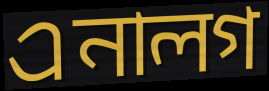
এনালগ